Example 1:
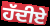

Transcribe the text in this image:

ਹੱਦੀਏ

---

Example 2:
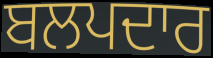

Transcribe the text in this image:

ਬਲਪਦਾਰ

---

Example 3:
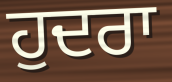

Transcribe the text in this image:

ਹੁਦਰਾ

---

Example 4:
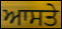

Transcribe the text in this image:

ਆਸਤੇ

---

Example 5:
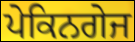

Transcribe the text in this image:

ਪੇਕਿਨਗੇਜ